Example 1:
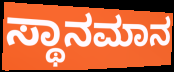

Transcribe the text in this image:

ಸ್ಥಾನಮಾನ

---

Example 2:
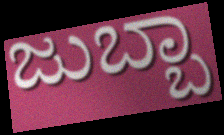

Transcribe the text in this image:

ಜುಬ್ಬಾ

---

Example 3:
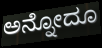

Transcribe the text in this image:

ಅನ್ನೋದೂ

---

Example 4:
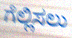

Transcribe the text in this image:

ಗೆಲ್ಲಿಸಲು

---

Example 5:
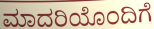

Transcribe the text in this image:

ಮಾದರಿಯೊಂದಿಗೆ